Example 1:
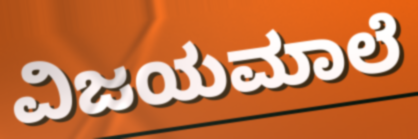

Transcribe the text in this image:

ವಿಜಯಮಾಲೆ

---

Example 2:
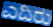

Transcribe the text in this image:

ಎದಿರು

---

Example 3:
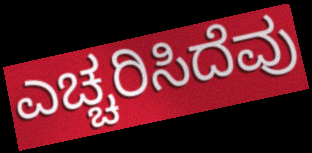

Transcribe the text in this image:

ಎಚ್ಚರಿಸಿದೆವು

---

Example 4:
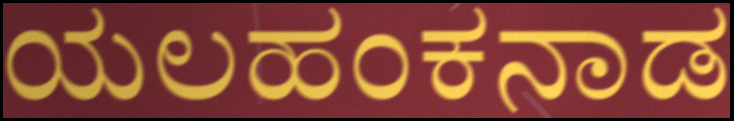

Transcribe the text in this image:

ಯಲಹಂಕನಾಡ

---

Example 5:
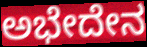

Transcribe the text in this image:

ಅಭೇದೇನ